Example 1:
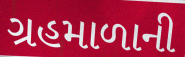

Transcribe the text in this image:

ગ્રહમાળાની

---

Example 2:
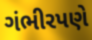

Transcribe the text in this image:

ગંભીરપણે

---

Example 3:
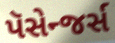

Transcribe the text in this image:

પૅસેન્જર્સ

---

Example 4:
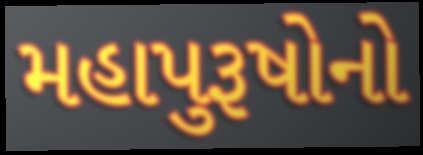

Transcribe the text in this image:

મહાપુરૂષોનો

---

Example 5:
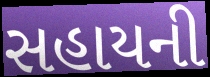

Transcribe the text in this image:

સહાયની